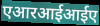
एआरआईआईए